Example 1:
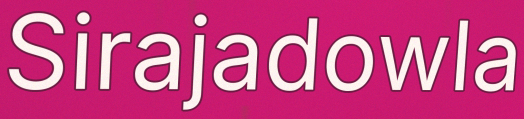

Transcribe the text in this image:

Sirajadowla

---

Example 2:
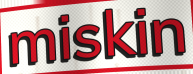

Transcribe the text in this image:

miskin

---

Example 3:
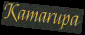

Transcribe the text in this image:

Kamarupa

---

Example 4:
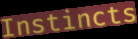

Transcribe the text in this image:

Instincts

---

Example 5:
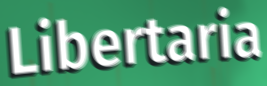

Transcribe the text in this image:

Libertaria